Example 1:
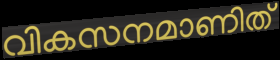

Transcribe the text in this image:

വികസനമാണിത്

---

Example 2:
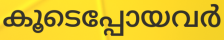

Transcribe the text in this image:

കൂടെപ്പോയവർ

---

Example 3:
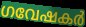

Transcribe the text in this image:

ഗവേഷകർ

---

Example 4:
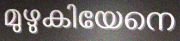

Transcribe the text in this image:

മുഴുകിയേനെ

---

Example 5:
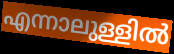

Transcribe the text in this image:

എന്നാലുള്ളിൽ